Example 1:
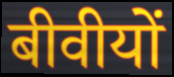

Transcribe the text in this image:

बीवीयों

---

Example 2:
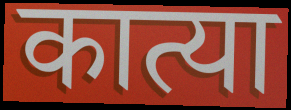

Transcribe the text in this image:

कात्या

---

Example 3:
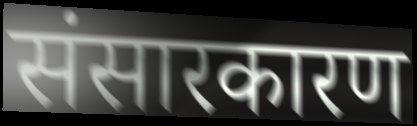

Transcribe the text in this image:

संसारकारण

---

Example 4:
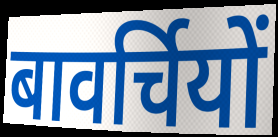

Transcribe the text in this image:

बावर्चियों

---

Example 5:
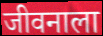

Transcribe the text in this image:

जीवनाला